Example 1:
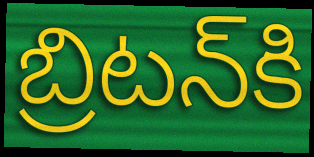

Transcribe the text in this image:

బ్రిటన్‌కి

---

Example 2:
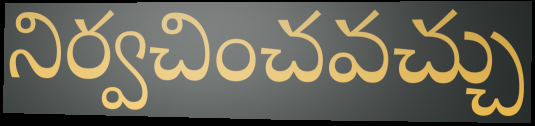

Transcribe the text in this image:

నిర్వచించవచ్చు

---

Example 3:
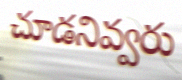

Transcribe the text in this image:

చూడనివ్వరు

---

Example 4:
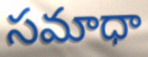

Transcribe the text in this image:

సమాధా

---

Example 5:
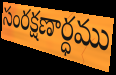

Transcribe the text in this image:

సంరక్షణార్ధము